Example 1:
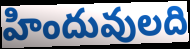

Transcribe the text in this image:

హిందువులది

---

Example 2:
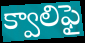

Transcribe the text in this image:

క్వాలిఫై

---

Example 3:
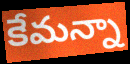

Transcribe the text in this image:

కేమన్నా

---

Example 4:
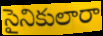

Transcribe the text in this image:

సైనికులారా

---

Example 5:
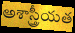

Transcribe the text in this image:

అశాస్త్రీయత